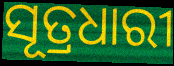
ସୂତ୍ରଧାରୀ